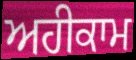
ਅਹੀਕਾਮ